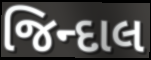
જિન્દાલ